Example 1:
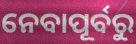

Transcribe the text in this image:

ନେବାପୂର୍ବରୁ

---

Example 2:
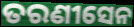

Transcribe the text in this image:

ତରଣୀସେନ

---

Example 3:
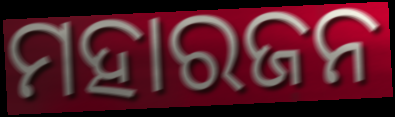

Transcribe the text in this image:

ମହାରଜନ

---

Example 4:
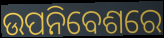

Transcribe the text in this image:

ଉପନିବେଶରେ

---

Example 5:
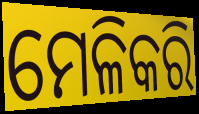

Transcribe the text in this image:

ମେଳିକରି